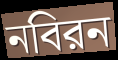
নবিরন